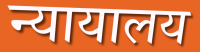
न्‍यायालय